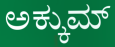
ಅಕ್ಕುಮ್